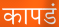
कापडं